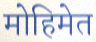
मोहिमेत